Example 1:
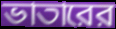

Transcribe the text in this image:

ভাতারের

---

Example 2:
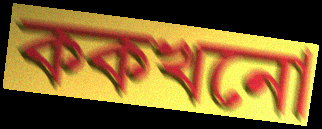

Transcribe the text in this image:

ককখনো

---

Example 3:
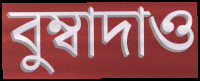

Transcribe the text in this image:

বুম্বাদাও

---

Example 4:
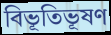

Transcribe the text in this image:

বিভূতিভূষণ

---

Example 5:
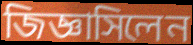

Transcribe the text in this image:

জিজ্ঞাসিলেন